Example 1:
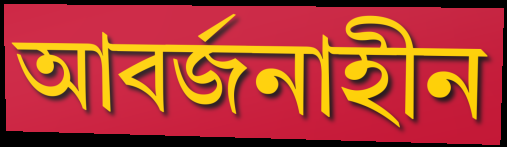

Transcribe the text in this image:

আবর্জনাহীন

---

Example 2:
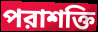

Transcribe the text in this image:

পরাশক্তি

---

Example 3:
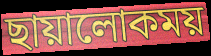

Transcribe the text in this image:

ছায়ালোকময়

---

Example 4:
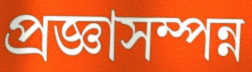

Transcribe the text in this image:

প্রজ্ঞাসম্পন্ন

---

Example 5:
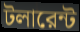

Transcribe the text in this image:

টলারেন্ট